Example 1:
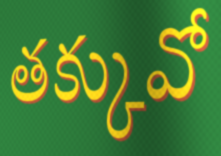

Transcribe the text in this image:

తక్కువో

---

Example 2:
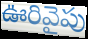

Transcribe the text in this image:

ఊరివైపు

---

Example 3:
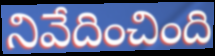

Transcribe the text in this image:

నివేదించింది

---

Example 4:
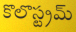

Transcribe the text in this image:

కొలొస్ట్రమ్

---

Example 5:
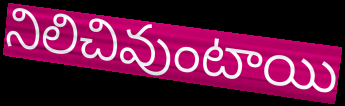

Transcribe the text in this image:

నిలిచివుంటాయి